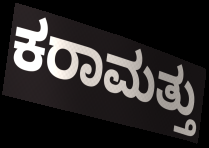
ಕರಾಮತ್ತು